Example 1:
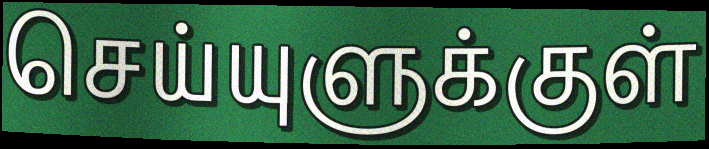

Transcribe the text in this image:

செய்யுளுக்குள்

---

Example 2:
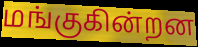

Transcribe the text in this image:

மங்குகின்றன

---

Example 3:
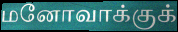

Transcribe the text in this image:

மனோவாக்குக்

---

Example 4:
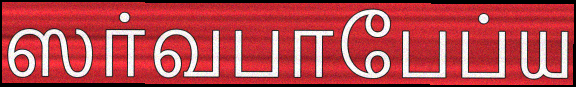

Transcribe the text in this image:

ஸர்வபாபேப்ய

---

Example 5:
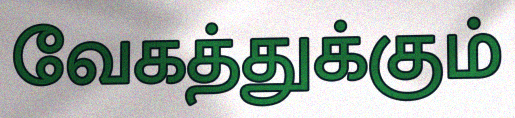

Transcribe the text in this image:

வேகத்துக்கும்